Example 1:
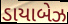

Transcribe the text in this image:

ડાયાબેઝ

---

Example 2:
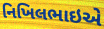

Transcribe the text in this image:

નિખિલભાઇએ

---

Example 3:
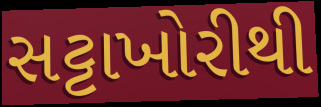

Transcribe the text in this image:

સટ્ટાખોરીથી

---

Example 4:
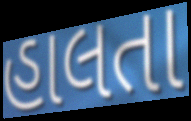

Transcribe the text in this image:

હાલતા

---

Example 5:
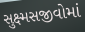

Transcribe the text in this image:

સુક્ષ્મસજીવોમાં